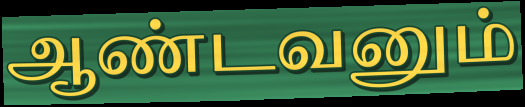
ஆண்டவனும்